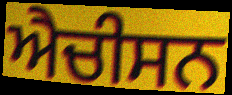
ਐਚੀਸਨ